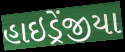
હાઇડ્રેંજીયા